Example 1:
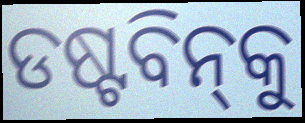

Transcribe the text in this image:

ଡଷ୍ଟବିନ୍‌କୁ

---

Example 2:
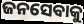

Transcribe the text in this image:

ଜନସେବାକୁ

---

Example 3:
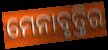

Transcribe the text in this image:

ମେନାବୃତ୍ତିର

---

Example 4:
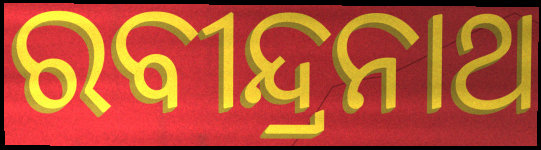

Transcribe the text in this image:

ରବୀନ୍ଦ୍ରନାଥ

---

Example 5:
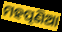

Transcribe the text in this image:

ମହତ୍ପଣିଆ